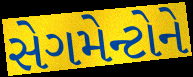
સેગમેન્ટોને